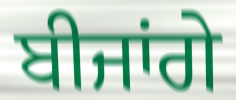
ਬੀਜਾਂਗੇ